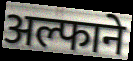
अल्फाने